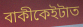
বাকীকেইটাত